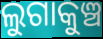
ଲୁଗାକୁଞ୍ଚ